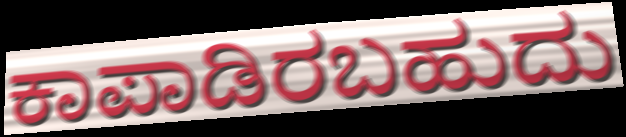
ಕಾಪಾಡಿರಬಹುದು